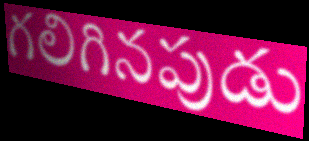
గలిగినపుడు